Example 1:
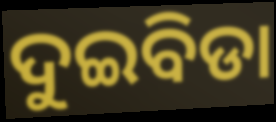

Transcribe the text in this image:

ଦୁଇବିଡା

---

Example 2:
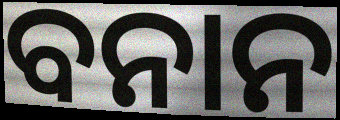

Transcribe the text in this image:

ବନାନ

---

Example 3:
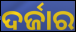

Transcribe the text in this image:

ଦର୍ଜାର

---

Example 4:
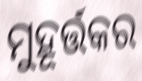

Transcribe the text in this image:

ମୁହୂର୍ତ୍ତକର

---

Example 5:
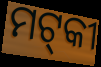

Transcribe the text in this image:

ମଟ୍‌କୀ